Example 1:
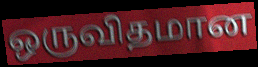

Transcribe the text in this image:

ஒருவிதமான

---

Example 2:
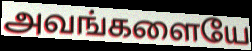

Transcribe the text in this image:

அவங்களையே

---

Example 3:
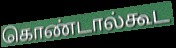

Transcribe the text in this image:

கொண்டால்கூட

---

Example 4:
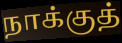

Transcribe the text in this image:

நாக்குத்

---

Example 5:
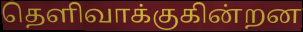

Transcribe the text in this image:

தெளிவாக்குகின்றன